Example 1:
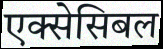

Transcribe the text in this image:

एक्सेसिबल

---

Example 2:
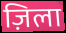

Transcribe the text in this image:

ज़िला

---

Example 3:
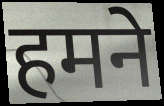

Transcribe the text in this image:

हमने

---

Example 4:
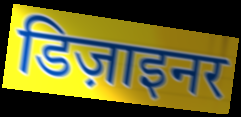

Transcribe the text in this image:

डिज़ाइनर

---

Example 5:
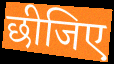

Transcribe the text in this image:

छीजिए